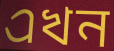
এখন